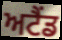
ਅਟੈਂਡ